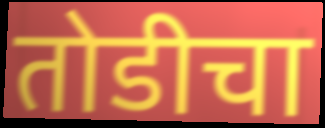
तोडीचा